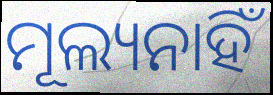
ମୂଲ୍ୟନାହିଁ